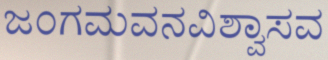
ಜಂಗಮವನವಿಶ್ವಾಸವ